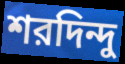
শরদিন্দু